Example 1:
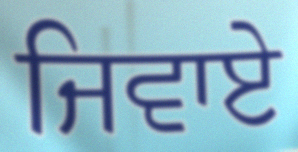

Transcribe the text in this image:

ਜਿਵਾਏ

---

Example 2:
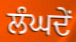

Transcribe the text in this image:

ਲੰਘਦੇਂ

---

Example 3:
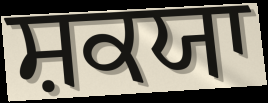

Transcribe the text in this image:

ਸ਼ਕਯਾ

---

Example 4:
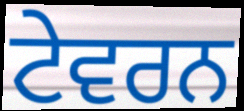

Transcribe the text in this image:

ਟੇਵਰਨ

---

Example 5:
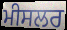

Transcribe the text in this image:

ਮੀਸਲਰ